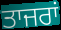
ਤਾਜਰਾਂ